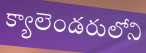
క్యాలెండరులోని